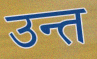
उन्त